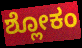
ಶ್ಲೋಕಂ